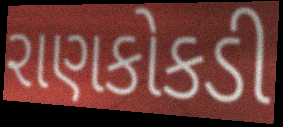
રાણકોકડી